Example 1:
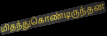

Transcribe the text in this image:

மிதந்துகொண்டிருந்தன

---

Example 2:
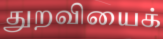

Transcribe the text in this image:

துறவியைக்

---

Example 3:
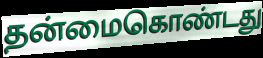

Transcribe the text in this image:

தன்மைகொண்டது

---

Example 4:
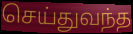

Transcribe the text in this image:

செய்துவந்த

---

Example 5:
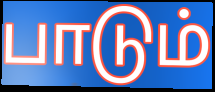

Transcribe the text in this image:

பாடும்